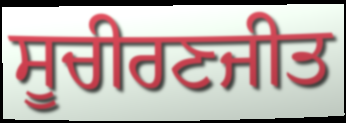
ਸੂਚੀਰਣਜੀਤ